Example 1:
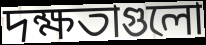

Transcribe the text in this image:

দক্ষতাগুলো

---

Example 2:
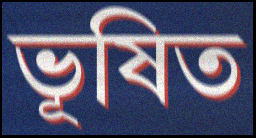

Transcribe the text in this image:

ভূষিত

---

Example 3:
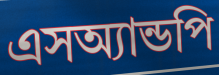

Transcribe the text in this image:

এসঅ্যান্ডপি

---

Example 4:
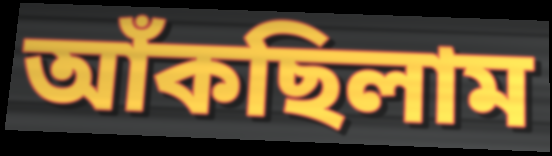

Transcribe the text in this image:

আঁকছিলাম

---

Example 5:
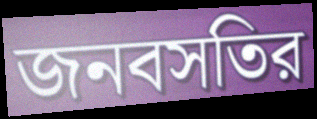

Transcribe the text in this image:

জনবসতির